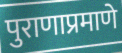
पुराणाप्रमाणे